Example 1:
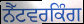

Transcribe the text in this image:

ਨੈੱਟਵਰਕਿੰਗ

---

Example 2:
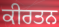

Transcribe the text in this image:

ਕੀਰਤਨ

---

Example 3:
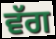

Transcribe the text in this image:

ਵੱਗ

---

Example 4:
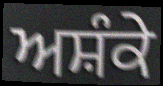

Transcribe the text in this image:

ਅਸ਼ੰਕੇ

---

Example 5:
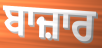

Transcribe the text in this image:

ਬਾਜ਼ਾਰ